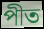
পীত